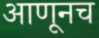
आणूनच